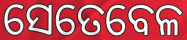
ସେତେବେଳ